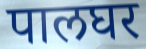
पालघर